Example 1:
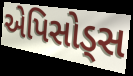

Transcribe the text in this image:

એપિસોડ્સ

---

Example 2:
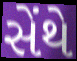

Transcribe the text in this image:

સેંથે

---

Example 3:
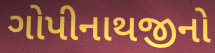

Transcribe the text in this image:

ગોપીનાથજીનો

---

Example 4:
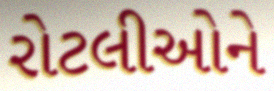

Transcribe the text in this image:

રોટલીઓને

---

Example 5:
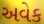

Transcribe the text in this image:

અવેક